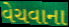
વેચવાના